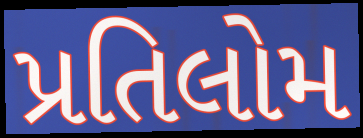
પ્રતિલોમ